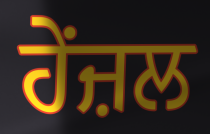
ਹੇਂਜ਼ਲ